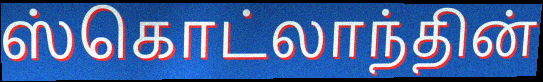
ஸ்கொட்லாந்தின்